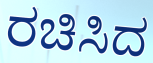
ರಚಿಸಿದ